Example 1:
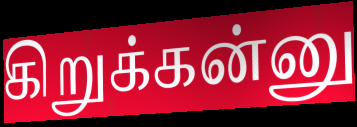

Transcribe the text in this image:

கிறுக்கன்னு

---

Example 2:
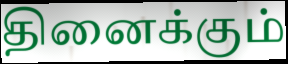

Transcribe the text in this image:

தினைக்கும்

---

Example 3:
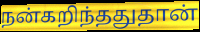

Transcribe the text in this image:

நன்கறிந்ததுதான்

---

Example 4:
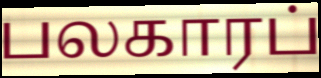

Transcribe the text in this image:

பலகாரப்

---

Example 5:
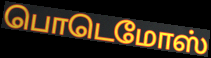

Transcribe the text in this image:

பொடெமோஸ்